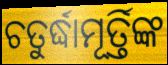
ଚତୁର୍ଦ୍ଧାମୂର୍ତ୍ତିଙ୍କ